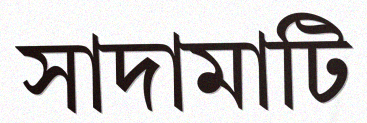
সাদামাটি